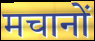
मचानों